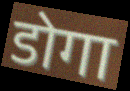
डोगा